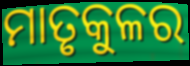
ମାତୃକୁଳର